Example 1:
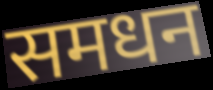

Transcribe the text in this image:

समधन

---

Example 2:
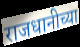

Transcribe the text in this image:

राजधानीच्या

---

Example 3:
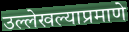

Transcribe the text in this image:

उल्लेखल्याप्रमाणे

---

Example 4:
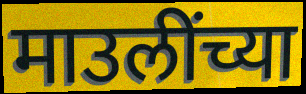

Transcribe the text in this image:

माउलींच्या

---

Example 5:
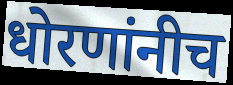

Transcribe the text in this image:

धोरणांनीच